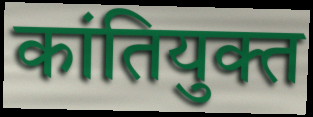
कांतियुक्त